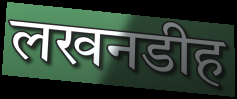
लखनडीह